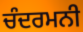
ਚੰਦਰਮਨੀ